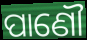
ପାଣୌ